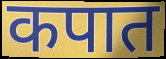
कपात